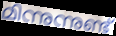
മിന്നുന്നുണ്ട്